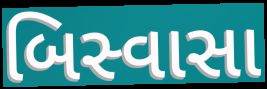
બિસ્વાસા